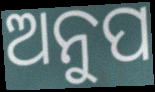
ଅନୁପ